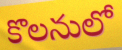
కొలనులో